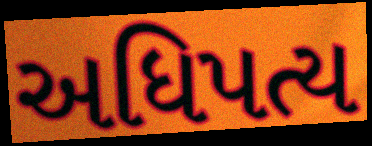
અધિપત્ય